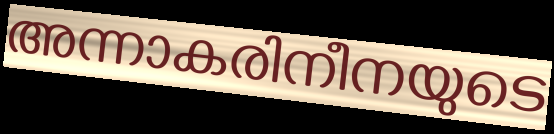
അന്നാകരിനീനയുടെ